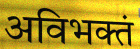
अविभक्तं